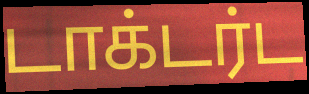
டாக்டர்ட